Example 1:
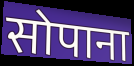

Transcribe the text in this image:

सोपाना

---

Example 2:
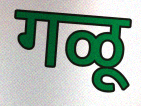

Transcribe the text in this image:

गळू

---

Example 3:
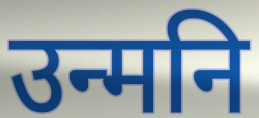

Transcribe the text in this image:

उन्मनि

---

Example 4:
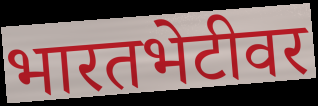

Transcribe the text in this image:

भारतभेटीवर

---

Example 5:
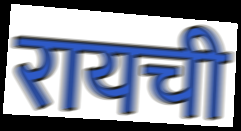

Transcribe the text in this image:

रायची